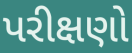
પરીક્ષણો